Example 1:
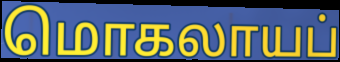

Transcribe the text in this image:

மொகலாயப்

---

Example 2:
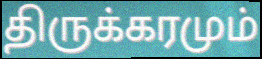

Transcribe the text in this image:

திருக்கரமும்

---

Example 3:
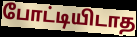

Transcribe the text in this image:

போட்டியிடாத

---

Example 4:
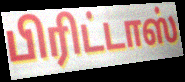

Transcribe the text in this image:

பிரிட்டாஸ்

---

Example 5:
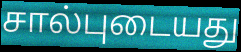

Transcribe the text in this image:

சால்புடையது